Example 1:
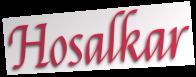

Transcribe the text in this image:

Hosalkar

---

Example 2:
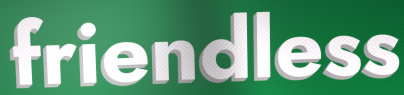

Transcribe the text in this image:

friendless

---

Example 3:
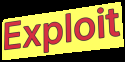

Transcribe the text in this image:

Exploit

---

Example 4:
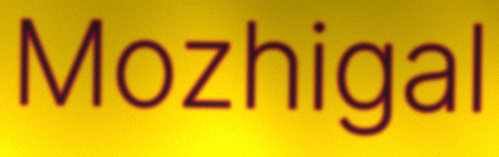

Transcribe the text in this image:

Mozhigal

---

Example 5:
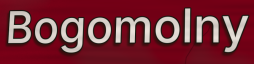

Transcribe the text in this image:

Bogomolny